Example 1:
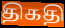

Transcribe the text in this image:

திகதி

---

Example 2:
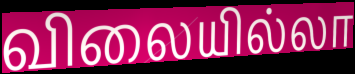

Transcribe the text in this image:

விலையில்லா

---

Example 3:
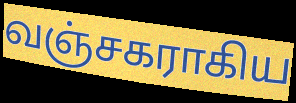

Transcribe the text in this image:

வஞ்சகராகிய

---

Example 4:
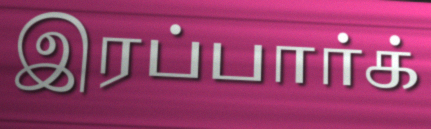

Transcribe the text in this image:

இரப்பார்க்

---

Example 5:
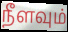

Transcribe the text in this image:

நீளவும்